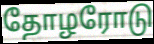
தோழரோடு